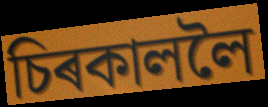
চিৰকাললৈ